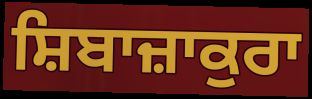
ਸ਼ਿਬਾਜ਼ਾਕੁਰਾ